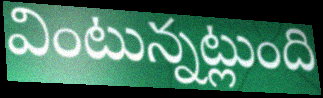
వింటున్నట్లుంది